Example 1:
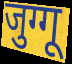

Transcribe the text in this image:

जुग्गू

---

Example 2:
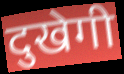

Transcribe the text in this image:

दुखेगी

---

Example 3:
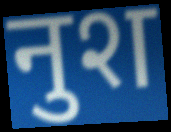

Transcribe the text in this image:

नुश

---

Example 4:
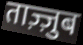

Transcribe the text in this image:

ताज़्ज़ुब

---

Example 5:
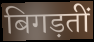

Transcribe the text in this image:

बिगड़तीं